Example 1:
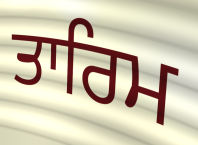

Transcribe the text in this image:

ਤਾਰਿਮ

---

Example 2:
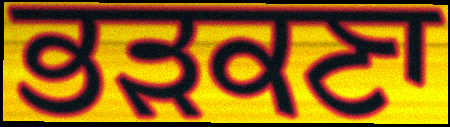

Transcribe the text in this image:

ਭੜਕਣਾ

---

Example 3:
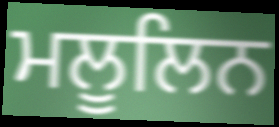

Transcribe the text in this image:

ਮਲੂਲਿਨ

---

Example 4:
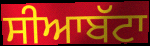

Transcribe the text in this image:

ਸੀਆਬੱਟਾ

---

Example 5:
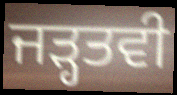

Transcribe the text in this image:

ਜੜ੍ਹਤਵੀ